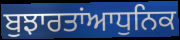
ਬੁਝਾਰਤਾਂਆਧੁਨਿਕ